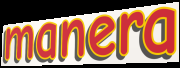
manera